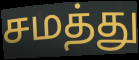
சமத்து